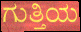
ಗುತ್ತಿಯ